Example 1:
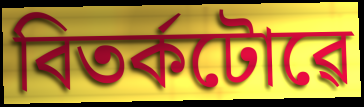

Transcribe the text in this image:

বিতৰ্কটোৱে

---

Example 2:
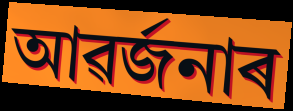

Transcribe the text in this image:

আৱৰ্জনাৰ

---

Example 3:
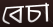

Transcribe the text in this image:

বেচা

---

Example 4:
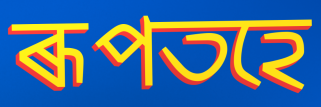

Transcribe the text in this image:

ৰূপতহে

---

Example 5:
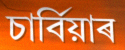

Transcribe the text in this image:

চাৰ্বিয়াৰ